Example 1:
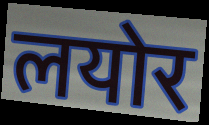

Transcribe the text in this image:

लयोर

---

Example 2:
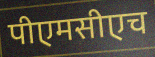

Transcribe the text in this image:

पीएमसीएच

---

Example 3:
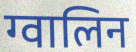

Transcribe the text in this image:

ग्वालिन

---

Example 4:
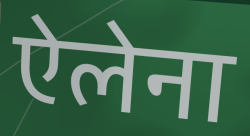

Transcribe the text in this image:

ऐलेना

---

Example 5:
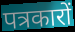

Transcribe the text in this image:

पत्रकारों